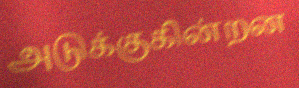
அடுக்குகின்றன